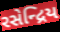
રસેન્દ્રિય